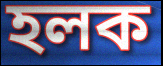
হলক